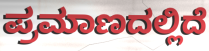
ಪ್ರಮಾಣದಲ್ಲಿದೆ